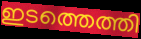
ഇടത്തെത്തി